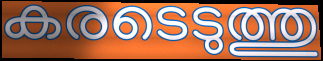
കരടെടുത്തു